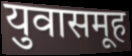
युवासमूह